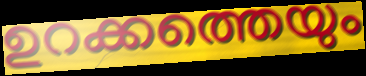
ഉറക്കത്തെയും